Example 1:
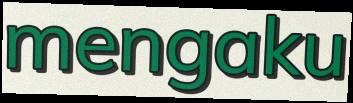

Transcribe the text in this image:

mengaku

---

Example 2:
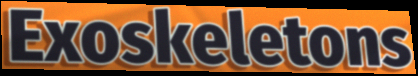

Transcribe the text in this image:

Exoskeletons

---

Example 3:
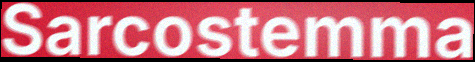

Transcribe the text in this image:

Sarcostemma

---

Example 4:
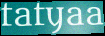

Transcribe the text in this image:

tatyaa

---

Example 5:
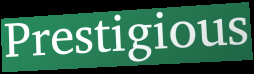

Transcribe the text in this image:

Prestigious